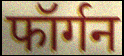
फॉर्गन